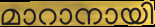
മാറാനായി